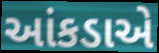
આંકડાએ